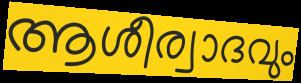
ആശീര്വാദവും